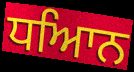
ਧਆਿਨ